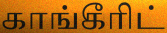
காங்கீரிட்